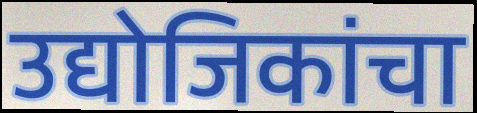
उद्योजिकांचा